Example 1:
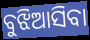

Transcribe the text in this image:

ବୁଝିଆସିବା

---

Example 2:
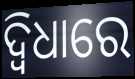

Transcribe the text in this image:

ଦ୍ୱିଧାରେ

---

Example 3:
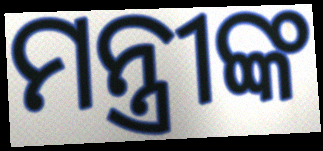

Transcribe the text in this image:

ମନ୍ତ୍ରୀଙ୍କ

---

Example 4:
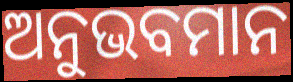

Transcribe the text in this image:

ଅନୁଭବମାନ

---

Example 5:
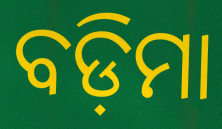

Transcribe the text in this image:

ବଡ଼ିମା